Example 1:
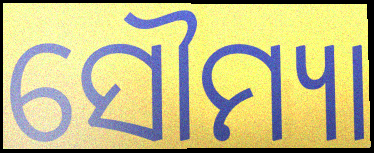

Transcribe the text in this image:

ସୌମ୍ୟା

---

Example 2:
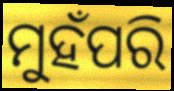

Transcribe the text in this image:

ମୁହଁପରି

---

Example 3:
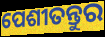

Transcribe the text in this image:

ପେଶୀତନ୍ତୁର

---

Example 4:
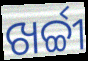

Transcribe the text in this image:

ଖର୍ଚ୍ଚୀ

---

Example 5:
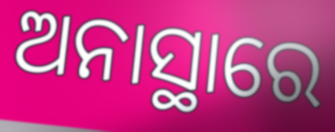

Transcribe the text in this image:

ଅନାସ୍ଥାରେ